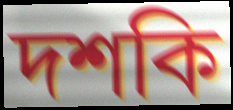
দশকি